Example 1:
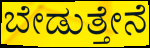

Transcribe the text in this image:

ಬೇಡುತ್ತೇನೆ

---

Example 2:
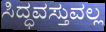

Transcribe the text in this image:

ಸಿದ್ಧವಸ್ತುವಲ್ಲ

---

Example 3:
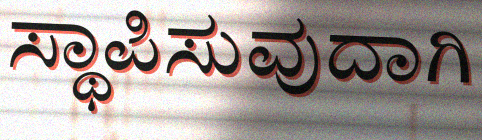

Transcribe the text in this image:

ಸ್ಥಾಪಿಸುವುದಾಗಿ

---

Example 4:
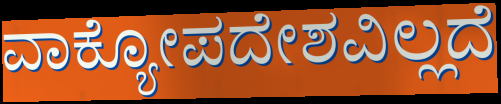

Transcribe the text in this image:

ವಾಕ್ಯೋಪದೇಶವಿಲ್ಲದೆ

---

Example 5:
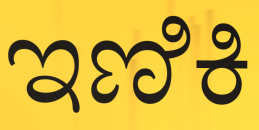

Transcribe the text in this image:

ಇಣಿಕಿ